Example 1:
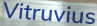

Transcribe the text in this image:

Vitruvius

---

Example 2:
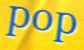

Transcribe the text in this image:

pop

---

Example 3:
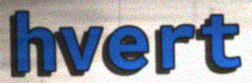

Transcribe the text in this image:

hvert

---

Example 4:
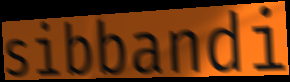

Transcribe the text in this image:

sibbandi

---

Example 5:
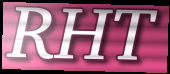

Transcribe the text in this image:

RHT